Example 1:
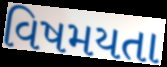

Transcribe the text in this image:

વિષમયતા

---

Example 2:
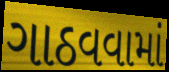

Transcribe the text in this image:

ગાઠવવામાં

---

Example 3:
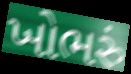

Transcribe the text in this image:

ખોભરું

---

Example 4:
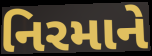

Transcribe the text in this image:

નિરમાને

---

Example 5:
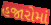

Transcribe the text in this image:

હજારોમાં